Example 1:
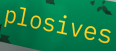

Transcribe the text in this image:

plosives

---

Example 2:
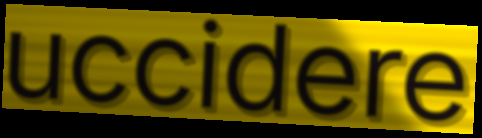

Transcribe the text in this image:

uccidere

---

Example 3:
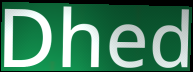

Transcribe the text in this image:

Dhed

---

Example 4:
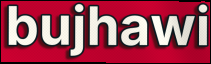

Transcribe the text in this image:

bujhawi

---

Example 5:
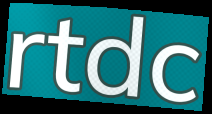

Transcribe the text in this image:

rtdc